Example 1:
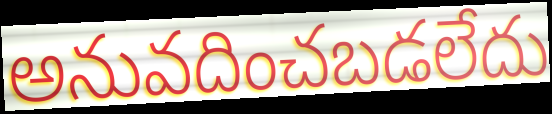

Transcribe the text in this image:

అనువదించబడలేదు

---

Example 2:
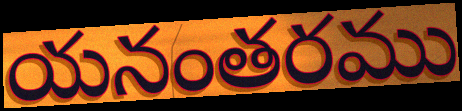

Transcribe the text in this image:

యనంతరము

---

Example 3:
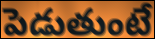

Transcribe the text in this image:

పెడుతుంటే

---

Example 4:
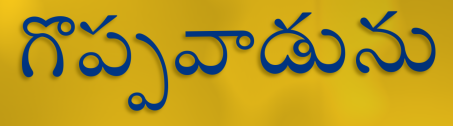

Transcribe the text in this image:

గొప్పవాడును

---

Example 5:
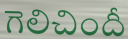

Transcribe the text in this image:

గెలిచిందీ